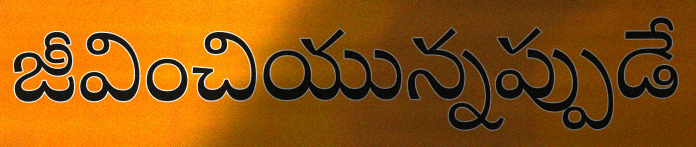
జీవించియున్నప్పుడే